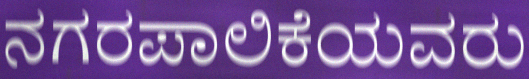
ನಗರಪಾಲಿಕೆಯವರು